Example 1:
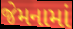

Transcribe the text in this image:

જેમનામાં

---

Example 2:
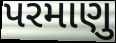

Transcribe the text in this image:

પરમાણુ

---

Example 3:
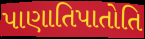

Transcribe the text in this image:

પાણાતિપાતોતિ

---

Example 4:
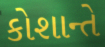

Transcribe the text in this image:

કોશાન્તે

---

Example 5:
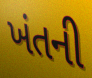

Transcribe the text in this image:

ખંતની